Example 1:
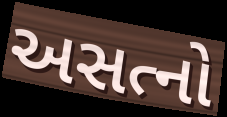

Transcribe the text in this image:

અસત્નો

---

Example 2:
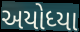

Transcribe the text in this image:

અયોધ્યા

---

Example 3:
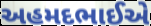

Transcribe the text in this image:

અહમદભાઈએ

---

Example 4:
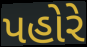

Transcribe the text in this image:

પહોરે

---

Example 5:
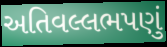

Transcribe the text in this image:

અતિવલ્લભપણું